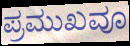
ಪ್ರಮುಖವೂ